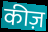
कीज़